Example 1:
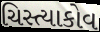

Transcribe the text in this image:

ચિસ્ત્યાકોવ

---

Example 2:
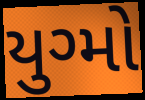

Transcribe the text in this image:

યુગ્મો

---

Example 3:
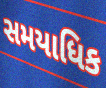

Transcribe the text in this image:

સમયાધિક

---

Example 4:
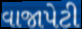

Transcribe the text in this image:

વાજાપેટી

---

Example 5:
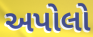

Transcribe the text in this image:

અપોલો